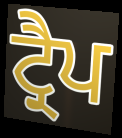
ਟ੍ਰੈਪ